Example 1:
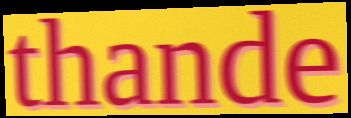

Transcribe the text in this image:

thande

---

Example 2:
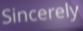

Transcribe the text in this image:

Sincerely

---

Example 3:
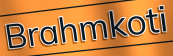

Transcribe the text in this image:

Brahmkoti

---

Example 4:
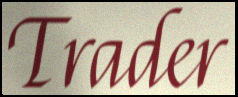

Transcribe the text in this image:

Trader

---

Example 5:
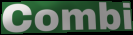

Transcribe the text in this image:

Combi